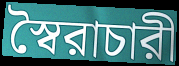
স্বৈরাচারী